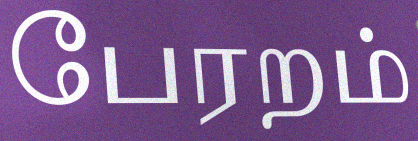
பேரறம்